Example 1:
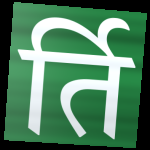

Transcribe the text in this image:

र्ति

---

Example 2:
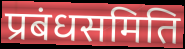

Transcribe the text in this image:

प्रबंधसमिति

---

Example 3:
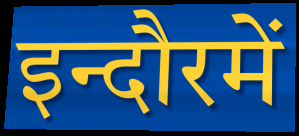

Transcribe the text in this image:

इन्दौरमें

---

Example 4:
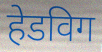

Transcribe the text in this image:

हेडविग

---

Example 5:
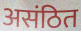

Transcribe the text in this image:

असंठित